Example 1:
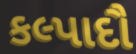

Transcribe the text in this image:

કલ્પાદૌ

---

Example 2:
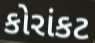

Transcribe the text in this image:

કોરાંકટ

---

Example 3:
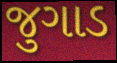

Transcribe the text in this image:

જુગાડ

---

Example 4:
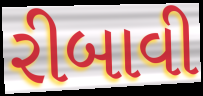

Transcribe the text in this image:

રીબાવી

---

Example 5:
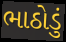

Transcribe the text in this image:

ભાઠોડું